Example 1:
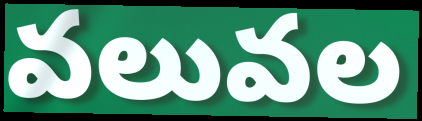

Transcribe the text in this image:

వలువల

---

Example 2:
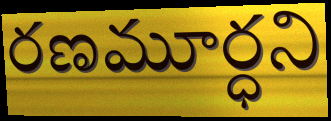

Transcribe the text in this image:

రణమూర్ధని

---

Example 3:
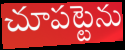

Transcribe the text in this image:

చూపట్టెను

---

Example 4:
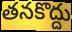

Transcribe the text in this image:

తనకొద్దు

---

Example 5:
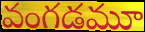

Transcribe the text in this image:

వంగడమూ